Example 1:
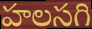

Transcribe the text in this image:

హలసగి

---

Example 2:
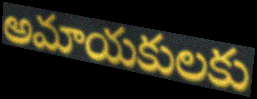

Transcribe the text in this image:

అమాయకులకు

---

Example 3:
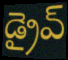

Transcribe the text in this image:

డ్రైవ్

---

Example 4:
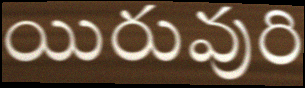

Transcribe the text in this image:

యిరువురి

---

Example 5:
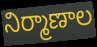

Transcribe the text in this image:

నిర్మాణాల